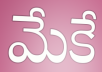
మేకే